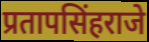
प्रतापसिंहराजे